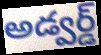
అడ్వర్డ్